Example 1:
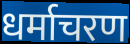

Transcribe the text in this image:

धर्माचरण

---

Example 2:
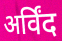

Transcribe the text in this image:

अर्विंद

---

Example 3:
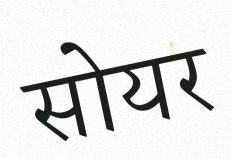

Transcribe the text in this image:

सोयर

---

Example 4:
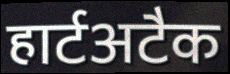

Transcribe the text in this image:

हार्टअटैक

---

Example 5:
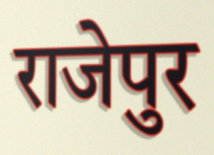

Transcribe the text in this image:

राजेपुर